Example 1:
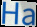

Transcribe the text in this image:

Ha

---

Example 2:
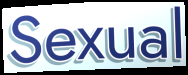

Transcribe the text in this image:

Sexual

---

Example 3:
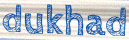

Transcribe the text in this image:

dukhad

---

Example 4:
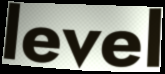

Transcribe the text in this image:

level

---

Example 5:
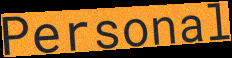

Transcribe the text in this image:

Personal